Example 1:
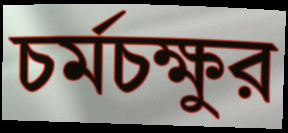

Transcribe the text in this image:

চর্মচক্ষুর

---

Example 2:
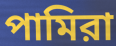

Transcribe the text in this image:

পামিরা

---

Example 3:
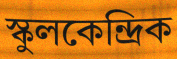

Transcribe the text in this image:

স্কুলকেন্দ্রিক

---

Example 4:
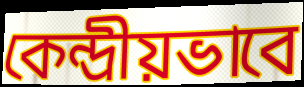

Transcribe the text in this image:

কেন্দ্রীয়ভাবে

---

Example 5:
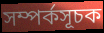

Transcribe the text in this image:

সম্পর্কসূচক